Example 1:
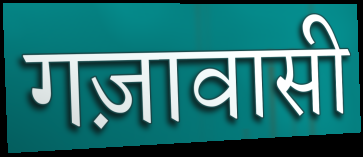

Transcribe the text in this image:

गज़ावासी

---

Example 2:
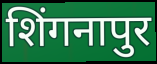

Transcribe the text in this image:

शिंगनापुर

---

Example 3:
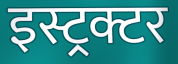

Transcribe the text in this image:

इस्ट्रक्टर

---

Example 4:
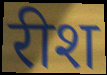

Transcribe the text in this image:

रीश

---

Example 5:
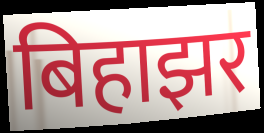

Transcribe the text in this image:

बिहाझर